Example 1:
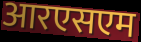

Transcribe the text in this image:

आरएसएम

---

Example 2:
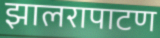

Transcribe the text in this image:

झालरापाटण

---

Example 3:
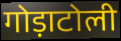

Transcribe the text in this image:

गोड़ाटोली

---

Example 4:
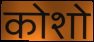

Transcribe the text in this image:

कोशो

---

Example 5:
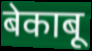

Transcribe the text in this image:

बेकाबू